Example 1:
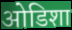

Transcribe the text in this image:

ओडिशा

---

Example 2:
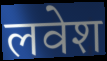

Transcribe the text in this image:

लवेश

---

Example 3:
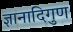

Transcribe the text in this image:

ज्ञानादिगुण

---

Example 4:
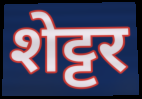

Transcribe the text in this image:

शेट्टर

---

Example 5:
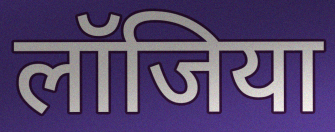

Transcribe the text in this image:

लॉजिया